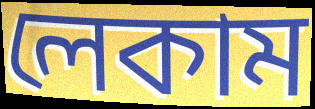
লেকাম